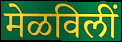
मेळविलीं